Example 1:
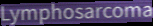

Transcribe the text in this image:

Lymphosarcoma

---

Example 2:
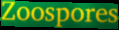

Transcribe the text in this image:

Zoospores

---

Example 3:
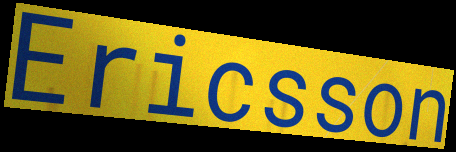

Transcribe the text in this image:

Ericsson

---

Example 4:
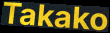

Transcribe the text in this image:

Takako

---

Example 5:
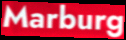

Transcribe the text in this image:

Marburg